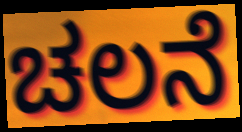
ಚಲನೆ